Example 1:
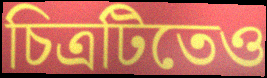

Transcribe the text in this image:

চিত্রটিতেও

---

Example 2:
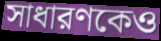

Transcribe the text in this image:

সাধারণকেও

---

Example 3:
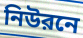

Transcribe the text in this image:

নিউরনে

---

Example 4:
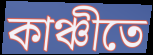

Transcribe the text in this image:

কাঞ্চীতে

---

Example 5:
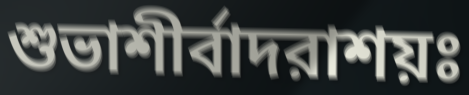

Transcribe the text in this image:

শুভাশীর্বাদরাশয়ঃ